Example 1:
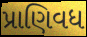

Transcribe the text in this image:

પ્રાણિવધ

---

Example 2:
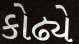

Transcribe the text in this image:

કોઢ્યે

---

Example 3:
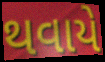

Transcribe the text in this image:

થવાયે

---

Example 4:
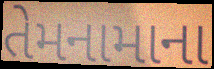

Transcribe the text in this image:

તેમનામાના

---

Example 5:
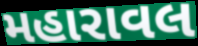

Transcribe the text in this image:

મહારાવલ